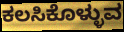
ಕಲಸಿಕೊಳ್ಳುವ